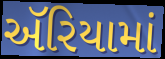
ઍરિયામાં